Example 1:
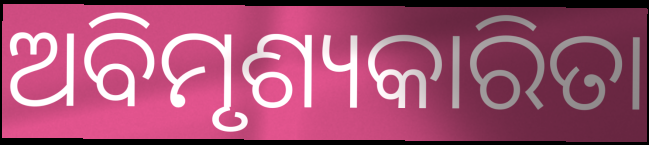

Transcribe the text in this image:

ଅବିମୃଶ୍ୟକାରିତା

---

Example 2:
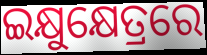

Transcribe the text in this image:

ଇକ୍ଷୁକ୍ଷେତ୍ରରେ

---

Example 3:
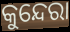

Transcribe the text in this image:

କୁନ୍ଦେରା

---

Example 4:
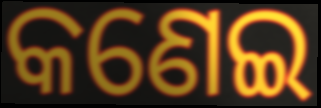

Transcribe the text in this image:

କଣେଇ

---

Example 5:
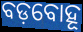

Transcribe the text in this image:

ବଡ଼ବୋହୂ